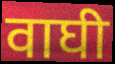
वाघी